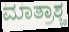
ಮಾತ್ರಾಶ್ಚ